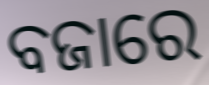
ବଜାରେ